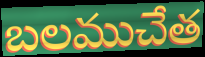
బలముచేత